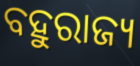
ବହୁରାଜ୍ୟ